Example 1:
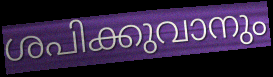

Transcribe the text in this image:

ശപിക്കുവാനും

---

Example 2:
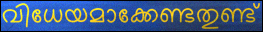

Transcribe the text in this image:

വിധേയമാക്കേണ്ടതുണ്ട്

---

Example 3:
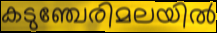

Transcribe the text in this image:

കടുഞ്ചേരിമലയിൽ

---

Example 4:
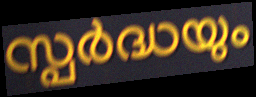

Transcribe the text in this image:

സ്പർദ്ധയും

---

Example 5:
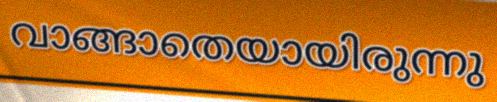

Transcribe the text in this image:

വാങ്ങാതെയായിരുന്നു